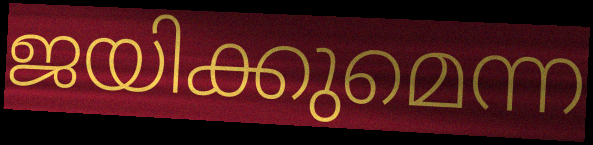
ജയിക്കുമെന്ന